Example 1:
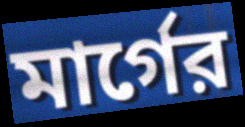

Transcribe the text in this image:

মার্গের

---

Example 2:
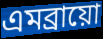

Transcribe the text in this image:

এমব্রায়ো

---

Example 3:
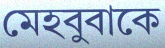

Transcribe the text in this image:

মেহবুবাকে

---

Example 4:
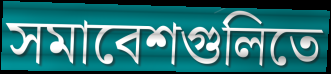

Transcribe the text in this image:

সমাবেশগুলিতে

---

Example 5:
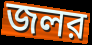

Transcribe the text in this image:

জলর